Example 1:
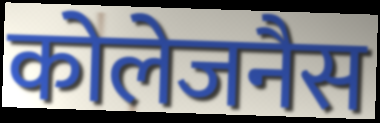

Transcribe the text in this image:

कोलेजनैस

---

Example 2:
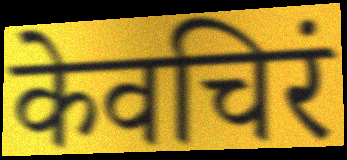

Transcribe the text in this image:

केवचिरं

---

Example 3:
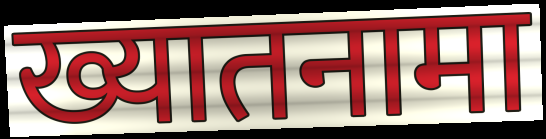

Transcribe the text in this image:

ख्यातनामा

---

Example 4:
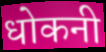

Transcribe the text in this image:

धोकनी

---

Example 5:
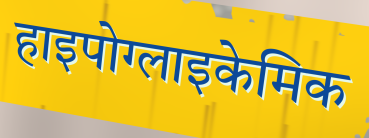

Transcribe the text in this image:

हाइपोग्लाइकेमिक